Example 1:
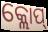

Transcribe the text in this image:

କ୍ଲୋପ୍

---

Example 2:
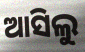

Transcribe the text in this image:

ଆସିଲୁ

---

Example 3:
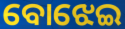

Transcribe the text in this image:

ବୋଝେଇ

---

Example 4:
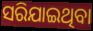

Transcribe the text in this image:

ସରିଯାଇଥିବା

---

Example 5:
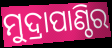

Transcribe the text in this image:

ମୁଦ୍ରାପାଣ୍ଠିର